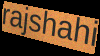
rajshahi